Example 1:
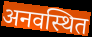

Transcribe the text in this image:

अनवस्थित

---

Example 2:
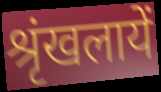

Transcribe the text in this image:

श्रृंखलायें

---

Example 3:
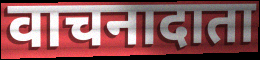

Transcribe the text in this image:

वाचनादाता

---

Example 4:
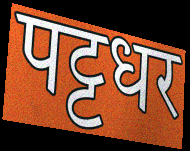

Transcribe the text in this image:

पट्टधर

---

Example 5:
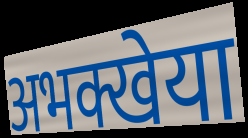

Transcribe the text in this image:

अभक्खेया